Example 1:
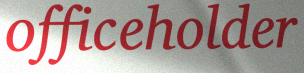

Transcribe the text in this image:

officeholder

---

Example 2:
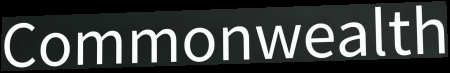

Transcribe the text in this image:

Commonwealth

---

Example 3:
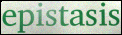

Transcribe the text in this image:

epistasis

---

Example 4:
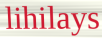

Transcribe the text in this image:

lihilays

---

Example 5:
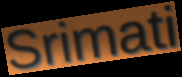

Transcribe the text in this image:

Srimati